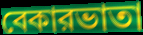
বেকারভাতা